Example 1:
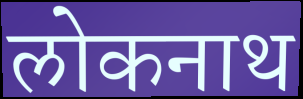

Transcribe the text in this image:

लोकनाथ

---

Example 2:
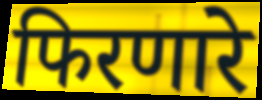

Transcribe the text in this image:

फिरणारे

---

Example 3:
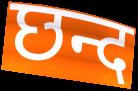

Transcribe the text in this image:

छन्द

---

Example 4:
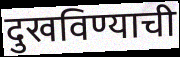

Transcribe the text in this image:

दुखविण्याची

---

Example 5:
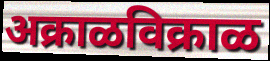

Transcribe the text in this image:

अक्राळविक्राळ